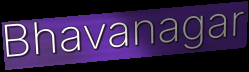
Bhavanagar